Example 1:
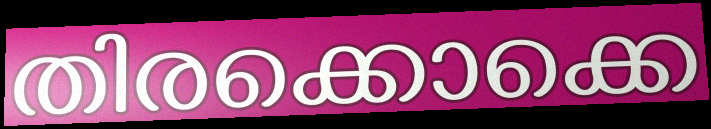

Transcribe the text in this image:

തിരക്കൊക്കെ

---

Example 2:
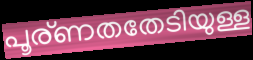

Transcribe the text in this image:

പൂര്ണതതേടിയുള്ള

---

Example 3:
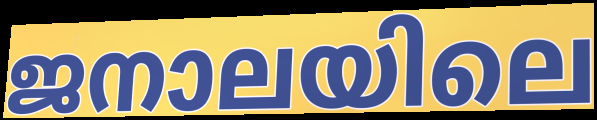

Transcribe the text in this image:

ജനാലയിലെ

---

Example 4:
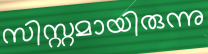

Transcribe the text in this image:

സിസ്റ്റമായിരുന്നു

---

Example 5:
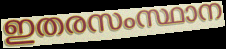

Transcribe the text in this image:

ഇതരസംസ്ഥാന